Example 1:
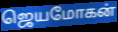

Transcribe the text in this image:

ஜெயமோகன்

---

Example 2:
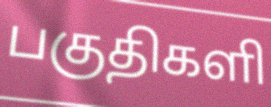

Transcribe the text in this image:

பகுதிகளி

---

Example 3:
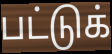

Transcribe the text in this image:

பட்டுக்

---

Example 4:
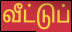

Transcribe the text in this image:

வீட்டுப்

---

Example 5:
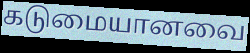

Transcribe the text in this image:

கடுமையானவை